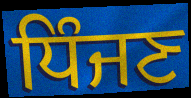
ਧਿੰਜਣ